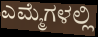
ಎಮ್ಮೆಗಳಲ್ಲಿ